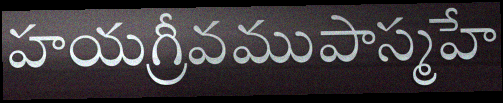
హయగ్రీవముపాస్మహే